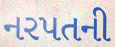
નરપતની